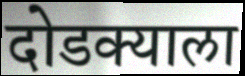
दोडक्याला